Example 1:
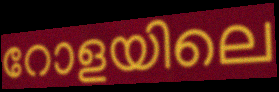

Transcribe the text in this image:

റോളയിലെ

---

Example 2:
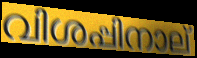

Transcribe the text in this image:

വിശപ്പിനാല്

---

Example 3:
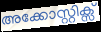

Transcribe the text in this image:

അക്കോസ്റ്റിക്സ്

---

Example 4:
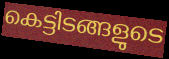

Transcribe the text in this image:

കെട്ടിടങ്ങളുടെ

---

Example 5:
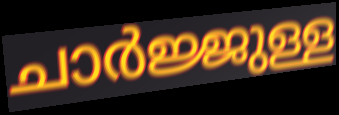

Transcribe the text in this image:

ചാർജ്ജുള്ള